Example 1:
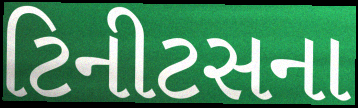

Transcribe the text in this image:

ટિનીટસના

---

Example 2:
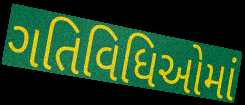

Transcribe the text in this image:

ગતિવિધિઓમાં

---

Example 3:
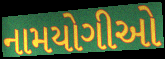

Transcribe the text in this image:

નામયોગીઓ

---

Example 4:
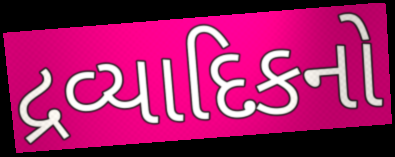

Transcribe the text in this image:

દ્રવ્યાદિકનો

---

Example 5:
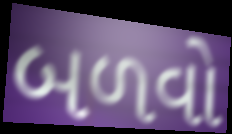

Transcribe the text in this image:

બળવો